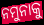
ନମୁନାକୁ